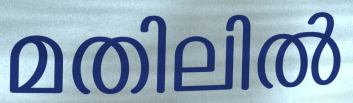
മതിലിൽ